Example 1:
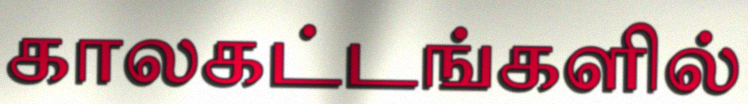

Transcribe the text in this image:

காலகட்டங்களில்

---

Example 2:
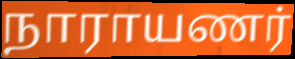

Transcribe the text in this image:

நாராயணர்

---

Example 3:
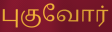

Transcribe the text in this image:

புகுவோர்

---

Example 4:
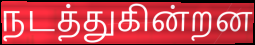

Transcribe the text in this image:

நடத்துகின்றன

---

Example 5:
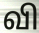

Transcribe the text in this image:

வி